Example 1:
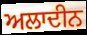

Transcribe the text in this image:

ਅਲਾਦੀਨ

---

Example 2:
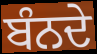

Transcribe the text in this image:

ਬੰਨਦੇ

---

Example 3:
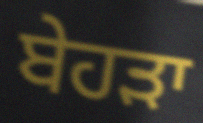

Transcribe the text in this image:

ਬੇਹੜਾ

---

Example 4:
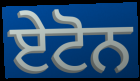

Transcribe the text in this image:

ਏਟੋਨ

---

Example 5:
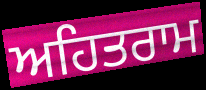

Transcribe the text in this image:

ਅਹਿਤਰਾਮ